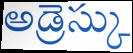
అడ్రెస్కు